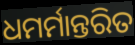
ଧମର୍ମାନ୍ତରିତ